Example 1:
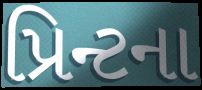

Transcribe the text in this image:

પ્રિન્ટના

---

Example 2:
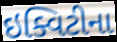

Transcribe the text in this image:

ઇક્વિટીના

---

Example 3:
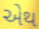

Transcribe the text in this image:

એથ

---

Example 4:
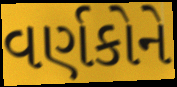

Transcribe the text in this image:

વર્ણકોને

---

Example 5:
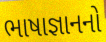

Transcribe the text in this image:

ભાષાજ્ઞાનનો